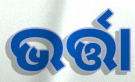
ଭର୍ତ୍ତା